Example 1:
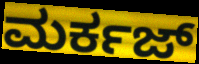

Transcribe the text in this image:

ಮರ್ಕಜ್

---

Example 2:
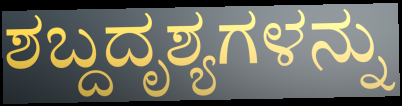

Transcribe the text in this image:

ಶಬ್ದದೃಶ್ಯಗಳನ್ನು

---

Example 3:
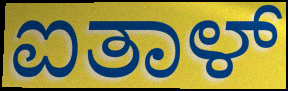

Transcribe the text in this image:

ಐತಾಳ್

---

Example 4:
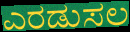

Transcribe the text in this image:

ಎರಡುಸಲ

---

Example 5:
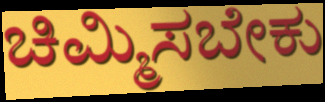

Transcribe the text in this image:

ಚಿಮ್ಮಿಸಬೇಕು